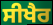
ਸੀਖੈਰ